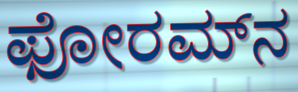
ಫೋರಮ್‌ನ